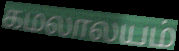
கமலாலயம்